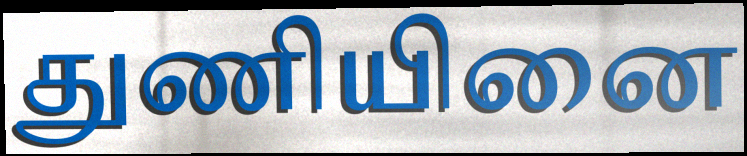
துணியினை